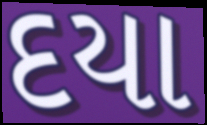
દયા